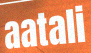
aatali